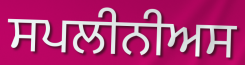
ਸਪਲੀਨੀਅਸ